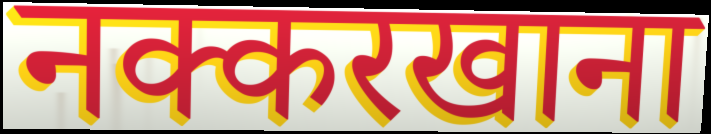
नक्करखाना